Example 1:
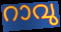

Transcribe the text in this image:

റാവു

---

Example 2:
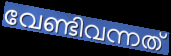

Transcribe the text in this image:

വേണ്ടിവന്നത്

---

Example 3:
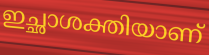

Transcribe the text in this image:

ഇച്ഛാശക്തിയാണ്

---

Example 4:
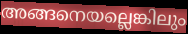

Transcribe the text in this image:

അങ്ങനെയല്ലെങ്കിലും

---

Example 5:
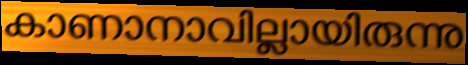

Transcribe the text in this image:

കാണാനാവില്ലായിരുന്നു